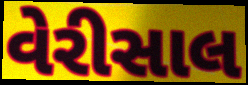
વેરીસાલ